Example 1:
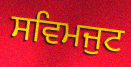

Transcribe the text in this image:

ਸਵਿਮਜੁਟ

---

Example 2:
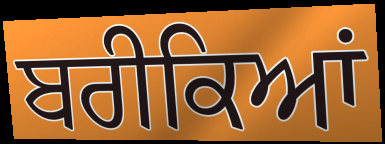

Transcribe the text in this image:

ਬਰੀਕਿਆਂ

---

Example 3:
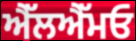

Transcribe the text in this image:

ਐੱਲਐੱਮਓ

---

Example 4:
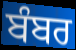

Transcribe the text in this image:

ਬੰਬਰ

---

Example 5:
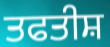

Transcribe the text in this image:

ਤਫਤੀਸ਼